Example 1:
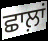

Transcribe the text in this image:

ਛਾਲ਼ਾਂ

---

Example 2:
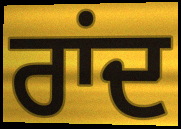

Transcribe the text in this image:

ਰਾਂਦ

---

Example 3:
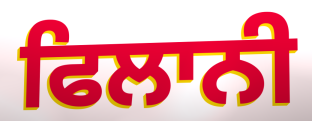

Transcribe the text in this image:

ਫਿਲਾਨੀ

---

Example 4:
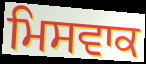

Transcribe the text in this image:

ਮਿਸਵਾਕ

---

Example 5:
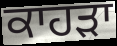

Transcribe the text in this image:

ਕਾਹੜਾ